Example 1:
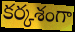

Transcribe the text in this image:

కర్కశంగా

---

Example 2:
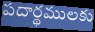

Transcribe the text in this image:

పదార్థములకు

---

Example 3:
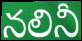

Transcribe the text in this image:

నలినీ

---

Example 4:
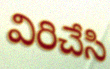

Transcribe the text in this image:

విరిచేసి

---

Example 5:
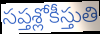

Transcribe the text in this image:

సప్తశ్లోకీస్తుతి